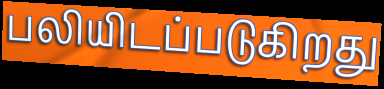
பலியிடப்படுகிறது